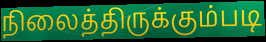
நிலைத்திருக்கும்படி